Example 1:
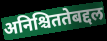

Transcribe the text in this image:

अनिश्चिततेबद्दल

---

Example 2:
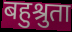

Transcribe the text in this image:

बहुश्रुता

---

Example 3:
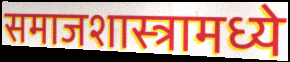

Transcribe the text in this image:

समाजशास्त्रामध्ये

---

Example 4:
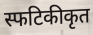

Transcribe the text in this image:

स्फटिकीकृत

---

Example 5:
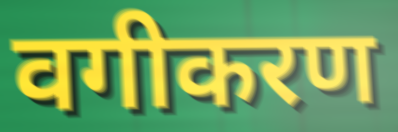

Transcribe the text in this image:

वगीकरण